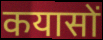
कयासों